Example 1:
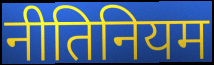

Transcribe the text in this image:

नीतिनियम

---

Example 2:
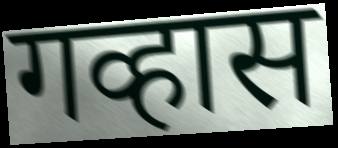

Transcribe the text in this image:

गव्हास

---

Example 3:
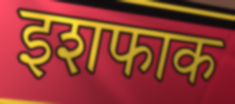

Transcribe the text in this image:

इशफाक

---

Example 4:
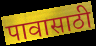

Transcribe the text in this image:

पावासाठी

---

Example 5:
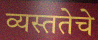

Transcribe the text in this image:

व्यस्ततेचे